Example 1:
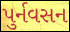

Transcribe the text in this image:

પુર્નવસન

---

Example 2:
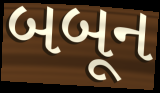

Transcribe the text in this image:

બબૂન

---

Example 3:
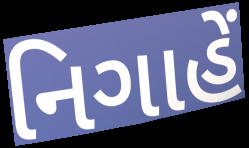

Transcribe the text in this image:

નિગાહેં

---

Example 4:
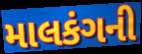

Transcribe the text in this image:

માલકંગની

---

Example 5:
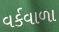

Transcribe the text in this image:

વર્કવાળા